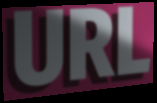
URL